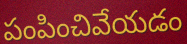
పంపించివేయడం